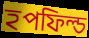
হপফিল্ড